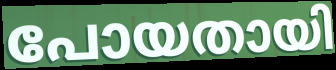
പോയതായി